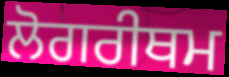
ਲੋਗਰੀਥਮ